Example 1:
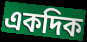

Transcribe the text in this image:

একদিক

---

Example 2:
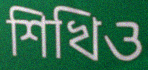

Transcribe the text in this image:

শিখিও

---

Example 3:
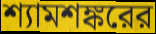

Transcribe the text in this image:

শ্যামশঙ্করের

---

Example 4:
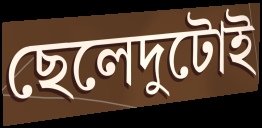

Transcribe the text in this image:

ছেলেদুটোই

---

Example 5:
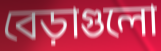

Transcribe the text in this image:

বেড়াগুলো